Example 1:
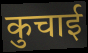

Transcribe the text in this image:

कुचाई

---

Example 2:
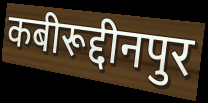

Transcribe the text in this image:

कबीरूद्दीनपुर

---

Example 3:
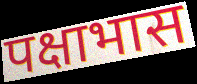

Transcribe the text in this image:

पक्षाभास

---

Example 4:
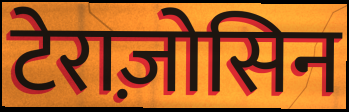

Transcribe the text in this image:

टेराज़ोसिन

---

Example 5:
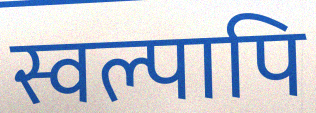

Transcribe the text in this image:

स्वल्पापि